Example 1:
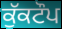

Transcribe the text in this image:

ਕੁੱਕਟੌਪ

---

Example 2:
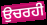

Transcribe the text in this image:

ਉਚਰਹੀ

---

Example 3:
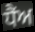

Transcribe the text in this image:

ਧੈਂਅ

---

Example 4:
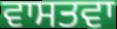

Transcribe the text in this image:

ਵਾਸਤਵਾ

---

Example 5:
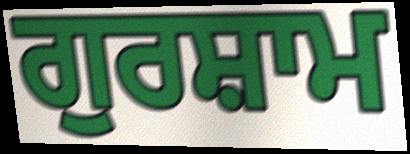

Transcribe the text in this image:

ਗੁਰਸ਼ਾਮ